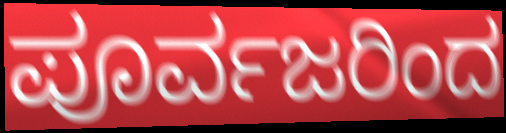
ಪೂರ್ವಜರಿಂದ